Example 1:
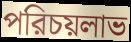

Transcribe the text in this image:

পরিচয়লাভ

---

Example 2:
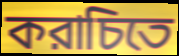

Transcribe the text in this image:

করাচিতে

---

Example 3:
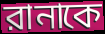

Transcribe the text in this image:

রানাকে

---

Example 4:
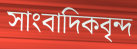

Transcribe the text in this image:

সাংবাদিকবৃন্দ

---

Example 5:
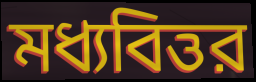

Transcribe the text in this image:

মধ্যবিত্তর